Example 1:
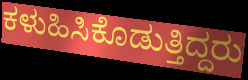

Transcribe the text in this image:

ಕಳುಹಿಸಿಕೊಡುತ್ತಿದ್ದರು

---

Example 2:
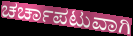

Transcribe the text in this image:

ಚರ್ಚಾಪಟುವಾಗಿ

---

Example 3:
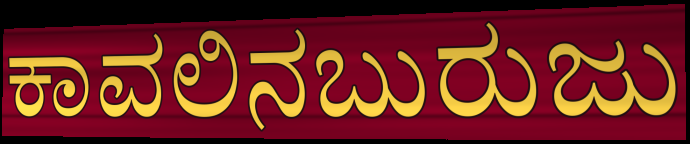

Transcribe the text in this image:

ಕಾವಲಿನಬುರುಜು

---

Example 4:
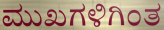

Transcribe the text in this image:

ಮುಖಗಳಿಗಿಂತ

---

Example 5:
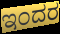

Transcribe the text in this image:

ಇಂದರ